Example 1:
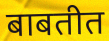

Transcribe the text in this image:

बाबतीत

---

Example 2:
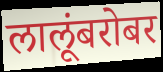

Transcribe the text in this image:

लालूंबरोबर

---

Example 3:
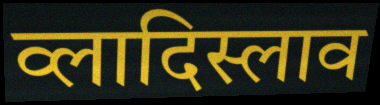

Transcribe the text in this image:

व्लादिस्लाव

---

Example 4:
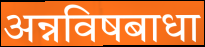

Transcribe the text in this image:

अन्नविषबाधा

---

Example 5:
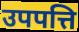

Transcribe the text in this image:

उपपत्ति